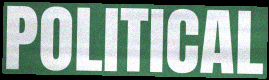
POLITICAL